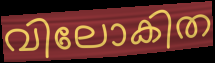
വിലോകിത